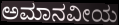
ಅಮಾನವೀಯ